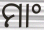
ମାଂ